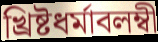
খ্রিষ্টধর্মাবলম্বী